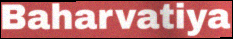
Baharvatiya